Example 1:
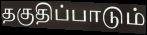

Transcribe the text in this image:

தகுதிப்பாடும்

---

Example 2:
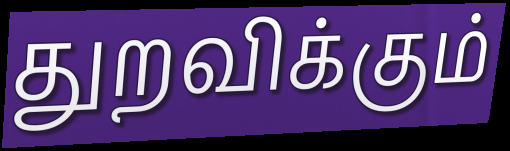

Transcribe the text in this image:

துறவிக்கும்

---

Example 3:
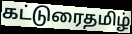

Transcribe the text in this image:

கட்டுரைதமிழ்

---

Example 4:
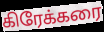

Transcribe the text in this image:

கிரேக்கரை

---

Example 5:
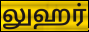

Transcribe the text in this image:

லுஹர்